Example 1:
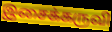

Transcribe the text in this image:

இசைக்கருவி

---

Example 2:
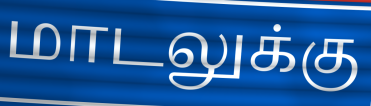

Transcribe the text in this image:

மாடலுக்கு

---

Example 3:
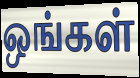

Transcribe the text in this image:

ஒங்கள்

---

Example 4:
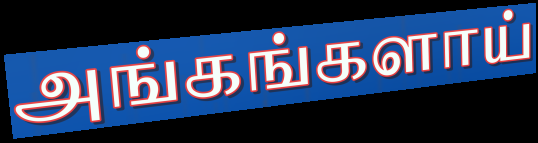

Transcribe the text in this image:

அங்கங்களாய்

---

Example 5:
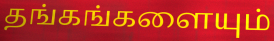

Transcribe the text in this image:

தங்கங்களையும்